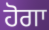
ਹੋਗਾ